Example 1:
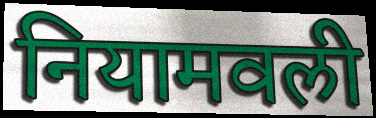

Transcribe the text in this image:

नियामवली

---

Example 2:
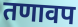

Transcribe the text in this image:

तणावप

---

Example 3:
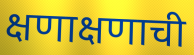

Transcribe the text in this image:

क्षणाक्षणाची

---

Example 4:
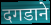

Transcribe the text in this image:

दगडाने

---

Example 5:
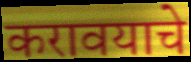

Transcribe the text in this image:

करावयाचे